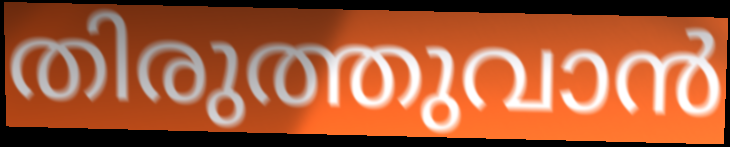
തിരുത്തുവാൻ